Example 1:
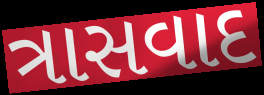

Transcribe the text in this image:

ત્રાસવાદ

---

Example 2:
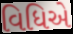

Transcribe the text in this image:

વિધિએ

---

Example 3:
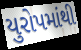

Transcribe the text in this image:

યુરોપમાંથી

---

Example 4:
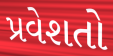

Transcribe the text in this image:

પ્રવેશતો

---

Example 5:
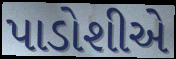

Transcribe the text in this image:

પાડોશીએ